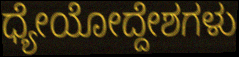
ಧ್ಯೇಯೋದ್ದೇಶಗಳು